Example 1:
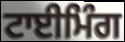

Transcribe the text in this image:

ਟਾਈਮਿੰਗ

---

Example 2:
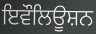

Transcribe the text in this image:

ਇਵੌਲਿਊਸ਼ਨ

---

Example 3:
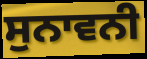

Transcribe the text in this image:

ਸੁਨਾਵਨੀ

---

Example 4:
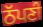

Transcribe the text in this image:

ਠੱਪਣੀ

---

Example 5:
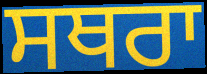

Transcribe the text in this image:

ਸਥਰਾ